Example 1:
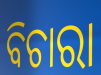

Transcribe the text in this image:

ବିଚାରା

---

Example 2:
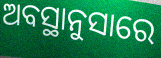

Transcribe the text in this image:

ଅବସ୍ଥାନୁସାରେ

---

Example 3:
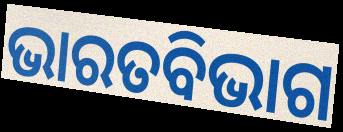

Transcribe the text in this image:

ଭାରତବିଭାଗ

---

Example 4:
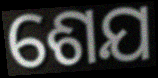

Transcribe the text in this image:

ଶେଯ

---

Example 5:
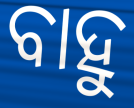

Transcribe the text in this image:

ବାହୁ